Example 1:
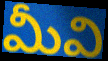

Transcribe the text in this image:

మీవి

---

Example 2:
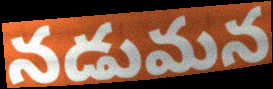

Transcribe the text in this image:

నడుమన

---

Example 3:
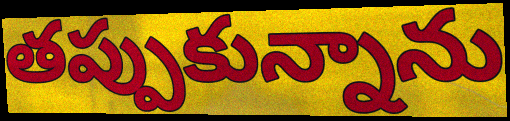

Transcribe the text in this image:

తప్పుకున్నాను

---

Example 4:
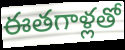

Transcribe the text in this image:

ఈతగాళ్లతో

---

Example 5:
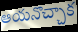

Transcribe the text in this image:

ఆయనొచ్చాక